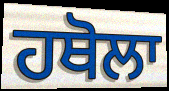
ਹਥੋਲਾ